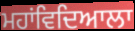
ਮਹਾਂਵਿਦਿਆਲਾ